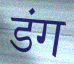
डंग